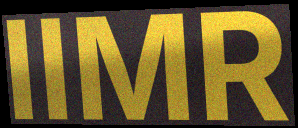
IIMR